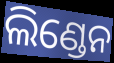
ଲିଣ୍ଡେନ